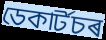
ডেকাৰ্টচৰ